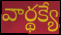
వార్థక్యే